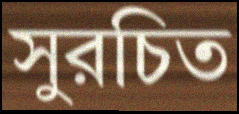
সুরচিত